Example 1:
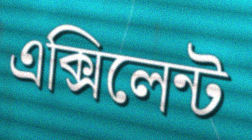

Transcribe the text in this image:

এক্সিলেন্ট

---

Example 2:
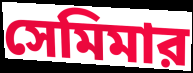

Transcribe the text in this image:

সেমিমার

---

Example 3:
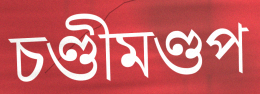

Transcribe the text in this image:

চণ্ডীমণ্ডপ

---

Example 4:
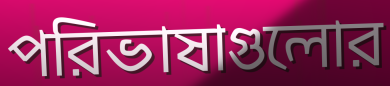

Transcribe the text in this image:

পরিভাষাগুলোর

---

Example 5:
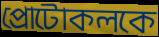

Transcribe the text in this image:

প্রোটোকলকে